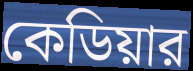
কেডিয়ার